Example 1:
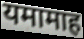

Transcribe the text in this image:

यमामाह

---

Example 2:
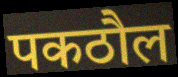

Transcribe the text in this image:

पकठौल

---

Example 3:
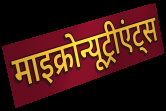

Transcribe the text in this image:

माइक्रोन्यूट्रीएंट्स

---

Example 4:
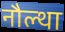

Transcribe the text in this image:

नौल्था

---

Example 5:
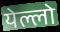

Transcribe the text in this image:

येल्लो